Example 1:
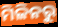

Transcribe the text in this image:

ମିଳିନରୁ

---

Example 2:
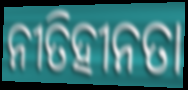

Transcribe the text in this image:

ନୀତିହୀନତା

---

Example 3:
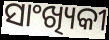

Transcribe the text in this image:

ସାଂଖ୍ୟିକୀ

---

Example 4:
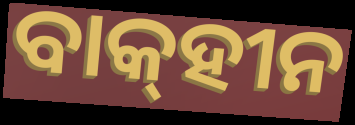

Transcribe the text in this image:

ବାକ୍‌ହୀନ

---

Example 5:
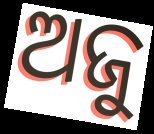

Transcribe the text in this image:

ଅଜୁ